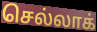
செல்லாக்